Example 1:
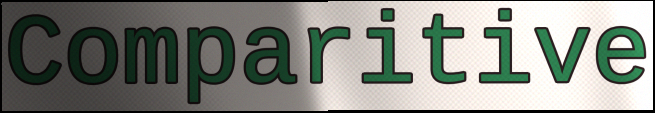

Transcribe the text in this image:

Comparitive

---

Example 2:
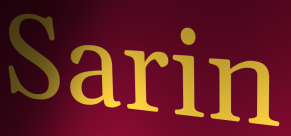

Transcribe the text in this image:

Sarin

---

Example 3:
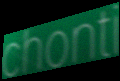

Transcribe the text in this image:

chonti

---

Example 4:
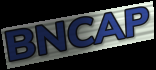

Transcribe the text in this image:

BNCAP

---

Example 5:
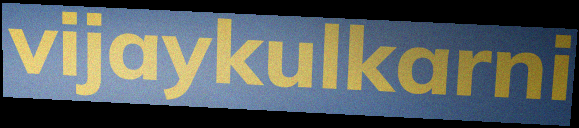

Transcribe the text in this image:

vijaykulkarni